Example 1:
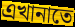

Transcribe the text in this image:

এখানাতে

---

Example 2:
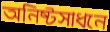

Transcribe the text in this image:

অনিষ্টসাধনে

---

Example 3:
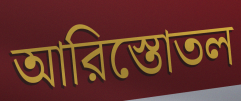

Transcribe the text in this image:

আরিস্তোতল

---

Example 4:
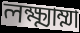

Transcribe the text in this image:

লক্ষ্মাম্মা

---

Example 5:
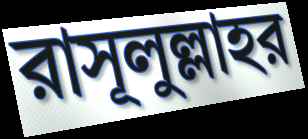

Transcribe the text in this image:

রাসূলুল্লাহর